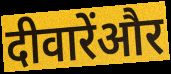
दीवारेंऔर